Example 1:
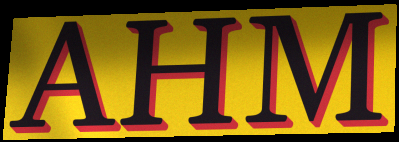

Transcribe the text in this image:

AHM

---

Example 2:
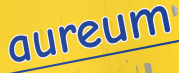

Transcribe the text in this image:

aureum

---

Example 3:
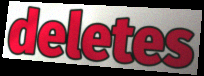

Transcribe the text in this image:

deletes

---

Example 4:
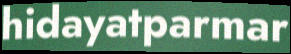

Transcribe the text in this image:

hidayatparmar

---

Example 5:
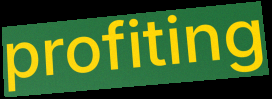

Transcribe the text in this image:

profiting